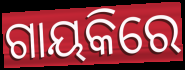
ଗାୟକିରେ